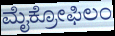
ಮೈಕ್ರೋಫಿಲಂ